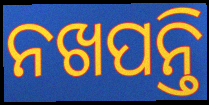
ନଖପନ୍ତି